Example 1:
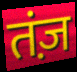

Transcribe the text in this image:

तंज़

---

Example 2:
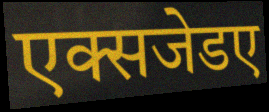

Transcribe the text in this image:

एक्सजेडए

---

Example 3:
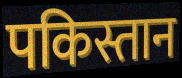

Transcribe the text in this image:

पकिस्तान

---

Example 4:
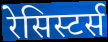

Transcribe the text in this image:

रेसिस्टर्स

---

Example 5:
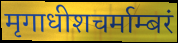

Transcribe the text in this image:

मृगाधीशचर्माम्बरं